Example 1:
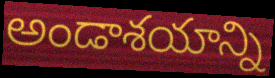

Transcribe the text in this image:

అండాశయాన్ని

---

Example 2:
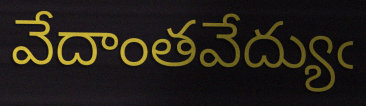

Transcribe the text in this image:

వేదాంతవేద్యుఁ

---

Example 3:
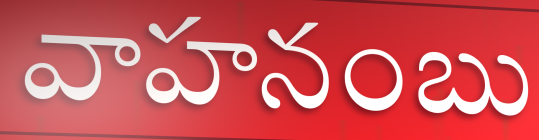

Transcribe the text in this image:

వాహనంబు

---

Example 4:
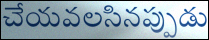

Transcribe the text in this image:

చేయవలసినప్పుడు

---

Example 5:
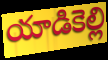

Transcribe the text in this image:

యాడికెల్లి